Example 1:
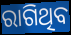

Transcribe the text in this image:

ରାଗିଥିବ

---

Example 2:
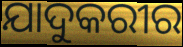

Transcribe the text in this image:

ଯାଦୁକରୀର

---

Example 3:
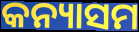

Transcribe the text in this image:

କନ୍ୟାସମ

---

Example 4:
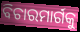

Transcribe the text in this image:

ବିଚାରମାର୍ଗକୁ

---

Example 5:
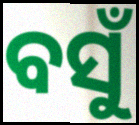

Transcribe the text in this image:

ବସୁଁ